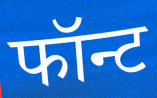
फॉन्ट